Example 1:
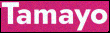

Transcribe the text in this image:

Tamayo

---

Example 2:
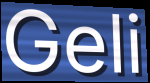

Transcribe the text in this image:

Geli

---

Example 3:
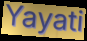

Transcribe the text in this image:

Yayati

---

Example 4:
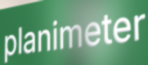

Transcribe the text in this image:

planimeter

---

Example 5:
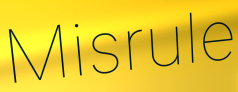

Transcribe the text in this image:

Misrule